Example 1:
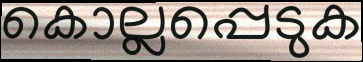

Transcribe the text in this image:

കൊല്ലപ്പെടുക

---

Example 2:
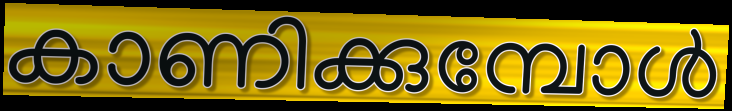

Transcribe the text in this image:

കാണിക്കുമ്പോൾ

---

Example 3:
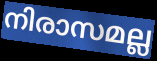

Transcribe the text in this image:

നിരാസമല്ല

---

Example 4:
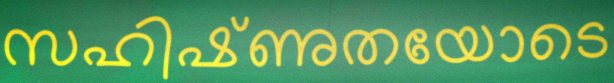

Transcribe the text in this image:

സഹിഷ്‌ണുതയോടെ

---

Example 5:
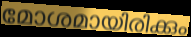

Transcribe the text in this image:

മോശമായിരിക്കും